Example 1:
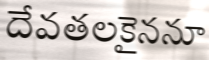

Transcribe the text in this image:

దేవతలకైననూ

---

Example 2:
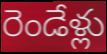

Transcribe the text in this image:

రెండేళ్లు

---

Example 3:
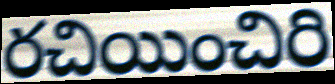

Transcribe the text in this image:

రచియించిరి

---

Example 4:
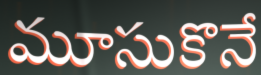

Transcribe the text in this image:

మూసుకొనే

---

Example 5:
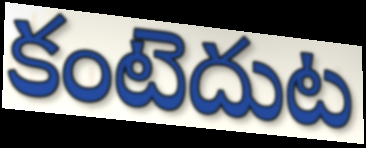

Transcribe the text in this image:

కంటెదుట